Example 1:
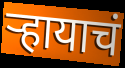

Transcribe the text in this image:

ऱ्हायाचं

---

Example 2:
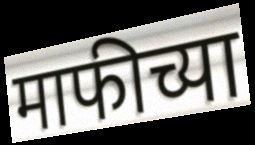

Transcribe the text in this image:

माफीच्या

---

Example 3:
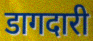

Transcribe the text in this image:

डागदारी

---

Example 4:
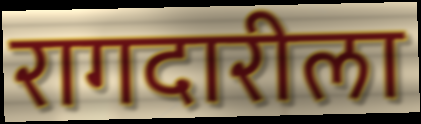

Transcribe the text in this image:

रागदारीला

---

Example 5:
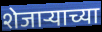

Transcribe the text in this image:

शेजार्‍याच्या